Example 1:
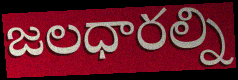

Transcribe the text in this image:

జలధారల్ని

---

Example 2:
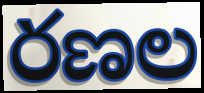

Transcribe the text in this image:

రణల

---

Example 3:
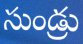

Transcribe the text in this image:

సుండ్రు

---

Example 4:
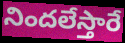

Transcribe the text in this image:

నిందలేస్తారే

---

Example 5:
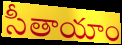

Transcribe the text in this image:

సీతాయాం